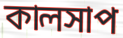
কালসাপ